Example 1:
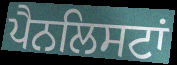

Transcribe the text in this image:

ਪੈਨਲਿਸਟਾਂ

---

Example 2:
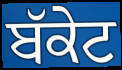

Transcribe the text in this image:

ਬੱਕੇਟ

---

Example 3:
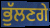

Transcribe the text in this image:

ਭੁੱਲਣਗੇ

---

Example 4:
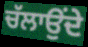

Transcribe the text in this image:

ਚੱਲਾਉਂਦੇ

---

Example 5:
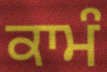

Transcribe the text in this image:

ਕਾਮੰ